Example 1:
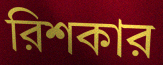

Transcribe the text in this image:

রিশকার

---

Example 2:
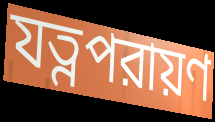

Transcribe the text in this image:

যত্নপরায়ণ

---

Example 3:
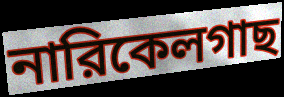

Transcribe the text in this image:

নারিকেলগাছ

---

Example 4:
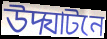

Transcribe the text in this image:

উদ্ঘাটনে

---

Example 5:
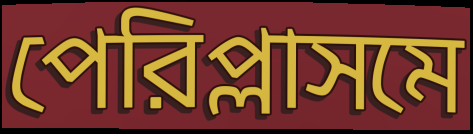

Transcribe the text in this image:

পেরিপ্লাসমে